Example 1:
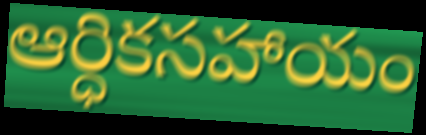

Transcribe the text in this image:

ఆర్ధికసహాయం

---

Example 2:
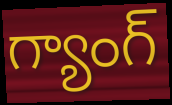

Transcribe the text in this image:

గ్యాంగ్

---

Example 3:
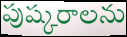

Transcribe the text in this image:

పుష్కరాలను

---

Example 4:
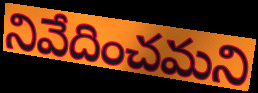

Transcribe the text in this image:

నివేదించమని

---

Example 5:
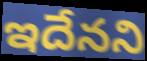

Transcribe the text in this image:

ఇదేనని